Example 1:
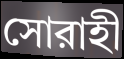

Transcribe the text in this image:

সোরাহী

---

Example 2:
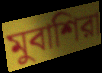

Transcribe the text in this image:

মুবাশিরা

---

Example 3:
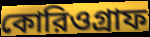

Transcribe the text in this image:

কোরিওগ্রাফ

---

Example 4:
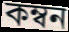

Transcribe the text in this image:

কম্বন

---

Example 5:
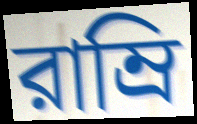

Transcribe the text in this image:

রাম্রি